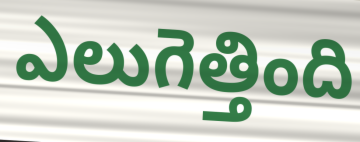
ఎలుగెత్తింది